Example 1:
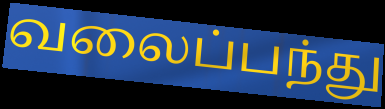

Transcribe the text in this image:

வலைப்பந்து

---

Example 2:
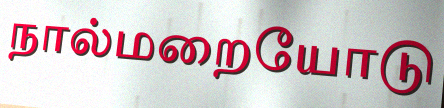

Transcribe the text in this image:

நால்மறையோடு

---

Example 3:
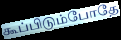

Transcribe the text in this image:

கூப்பிடும்போதே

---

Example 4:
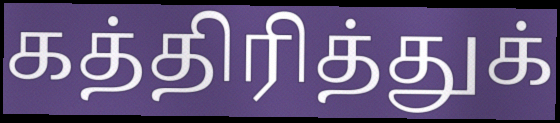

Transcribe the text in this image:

கத்திரித்துக்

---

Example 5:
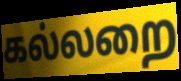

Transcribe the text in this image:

கல்லறை